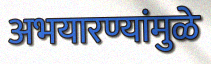
अभयारण्यांमुळे